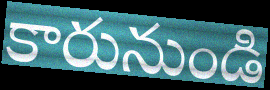
కారునుండి